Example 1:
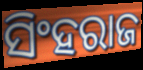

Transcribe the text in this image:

ସିଂହରାଜ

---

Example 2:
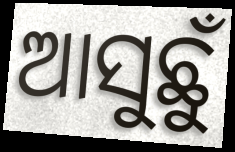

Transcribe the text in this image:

ଆସୁଛୁଁ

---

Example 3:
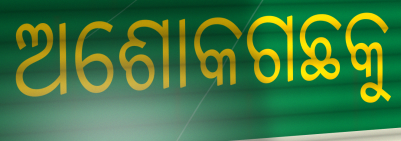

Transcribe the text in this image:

ଅଶୋକଗଛକୁ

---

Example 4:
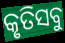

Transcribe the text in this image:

କୃତିସବୁ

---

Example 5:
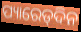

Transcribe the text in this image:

ପ୍ୟାରେଡ୍‌ଦିନ